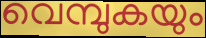
വെമ്പുകയും